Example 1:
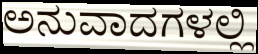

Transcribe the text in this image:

ಅನುವಾದಗಳಲ್ಲಿ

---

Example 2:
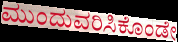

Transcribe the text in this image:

ಮುಂದುವರಿಸಿಕೊಂಡೇ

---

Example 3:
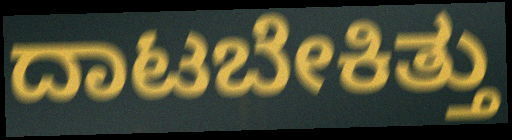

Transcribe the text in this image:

ದಾಟಬೇಕಿತ್ತು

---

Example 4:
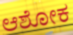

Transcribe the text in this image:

ಆಶೋಕ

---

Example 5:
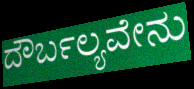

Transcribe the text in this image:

ದೌರ್ಬಲ್ಯವೇನು